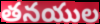
తనయుల